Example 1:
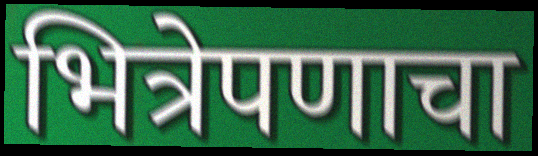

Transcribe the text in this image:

भित्रेपणाचा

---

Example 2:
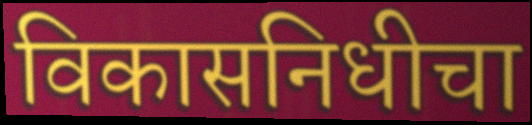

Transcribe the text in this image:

विकासनिधीचा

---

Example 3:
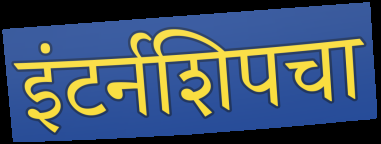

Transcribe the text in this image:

इंटर्नशिपचा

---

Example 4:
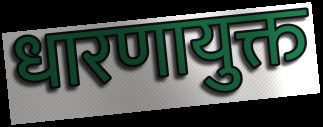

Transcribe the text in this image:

धारणायुक्त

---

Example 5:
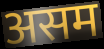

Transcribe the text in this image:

असम